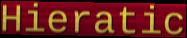
Hieratic